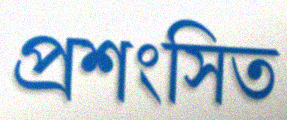
প্ৰশংসিত